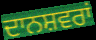
ਦਾਨਸ਼ਵਰਾਂ